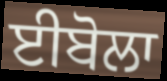
ਈਬੋਲਾ